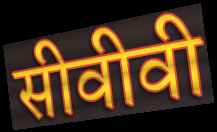
सीवीवी